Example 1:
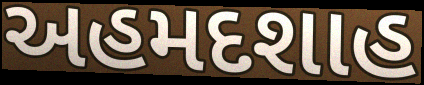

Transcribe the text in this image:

અહમદશાહ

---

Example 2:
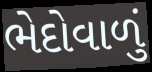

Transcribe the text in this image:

ભેદોવાળું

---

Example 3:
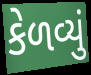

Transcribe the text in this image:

કેળવ્યું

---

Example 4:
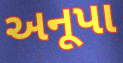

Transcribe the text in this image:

અનૂપા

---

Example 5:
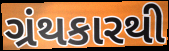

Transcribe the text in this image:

ગ્રંથકારથી